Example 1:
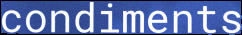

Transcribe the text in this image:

condiments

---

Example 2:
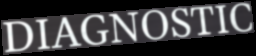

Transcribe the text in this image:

DIAGNOSTIC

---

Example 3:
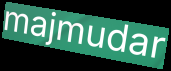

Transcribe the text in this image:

majmudar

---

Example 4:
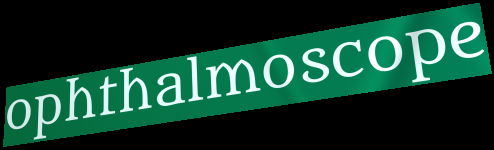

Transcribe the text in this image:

ophthalmoscope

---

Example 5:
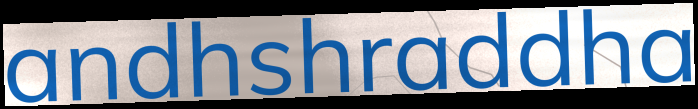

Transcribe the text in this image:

andhshraddha